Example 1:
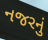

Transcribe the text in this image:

નજરનું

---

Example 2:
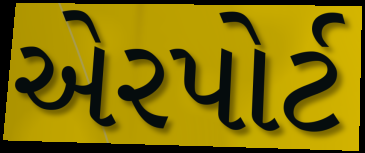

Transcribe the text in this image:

એરપોર્ટ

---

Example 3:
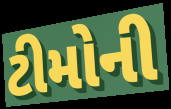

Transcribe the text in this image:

ટીમોની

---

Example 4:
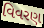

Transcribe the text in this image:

વિવરણ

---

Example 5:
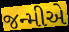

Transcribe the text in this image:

જન્મીએ